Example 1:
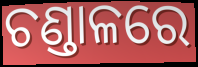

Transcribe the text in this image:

ଚଣ୍ଡାଳରେ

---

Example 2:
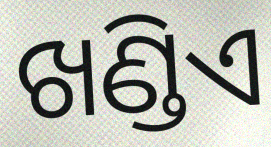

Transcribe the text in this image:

ଖଣ୍ଡିଏ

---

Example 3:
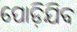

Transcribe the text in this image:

ପୋଡ଼ିଯିବ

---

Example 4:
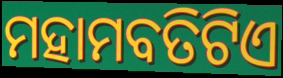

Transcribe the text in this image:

ମହାମବତିଟିଏ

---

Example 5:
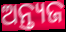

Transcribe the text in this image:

ଅନ୍ତ୍ୟଜ